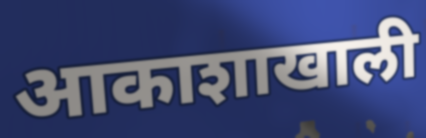
आकाशाखाली